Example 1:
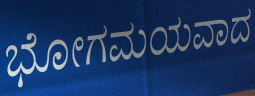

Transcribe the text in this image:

ಭೋಗಮಯವಾದ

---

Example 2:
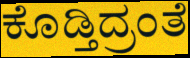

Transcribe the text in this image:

ಕೊಡ್ತಿದ್ರಂತೆ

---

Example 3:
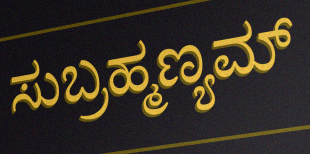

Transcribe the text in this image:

ಸುಬ್ರಹ್ಮಣ್ಯಮ್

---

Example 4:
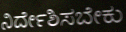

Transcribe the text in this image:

ನಿರ್ದೇಶಿಸಬೇಕು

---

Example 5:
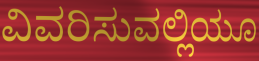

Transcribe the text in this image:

ವಿವರಿಸುವಲ್ಲಿಯೂ